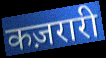
कज़रारी